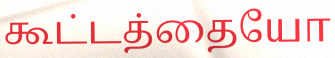
கூட்டத்தையோ